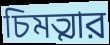
চিমত্মার